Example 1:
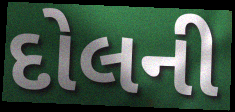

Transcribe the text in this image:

દોલની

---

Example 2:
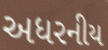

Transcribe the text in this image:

અધરનીય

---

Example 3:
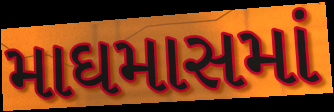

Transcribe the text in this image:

માઘમાસમાં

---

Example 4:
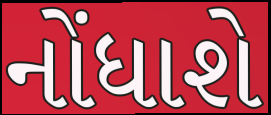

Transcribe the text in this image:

નોંધાશે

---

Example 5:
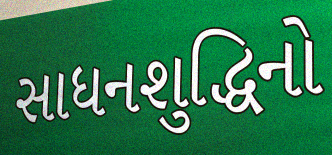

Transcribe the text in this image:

સાધનશુદ્ધિનો